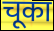
चूका